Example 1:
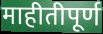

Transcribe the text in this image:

माहीतीपूर्ण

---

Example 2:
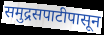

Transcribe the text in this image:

समुद्रसपाटीपासून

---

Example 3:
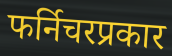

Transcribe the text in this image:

फर्निचरप्रकार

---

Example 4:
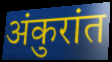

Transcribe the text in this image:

अंकुरांत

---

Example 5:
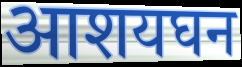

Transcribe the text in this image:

आशयघन